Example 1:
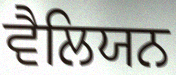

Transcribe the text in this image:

ਵੈਲਿਯਨ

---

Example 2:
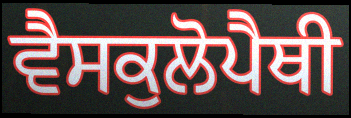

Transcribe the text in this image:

ਵੈਸਕੁਲੋਪੈਥੀ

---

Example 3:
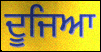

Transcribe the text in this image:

ਦੂਜਿਆ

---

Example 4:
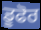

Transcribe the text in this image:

ਡੂਫੋਰ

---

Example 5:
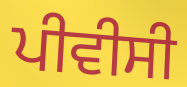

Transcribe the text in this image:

ਪੀਵੀਸੀ